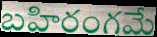
బహిరంగమే